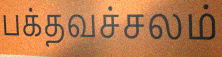
பக்தவச்சலம்